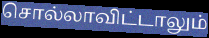
சொல்லாவிட்டாலும்